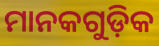
ମାନକଗୁଡ଼ିକ